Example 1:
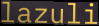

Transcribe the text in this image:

lazuli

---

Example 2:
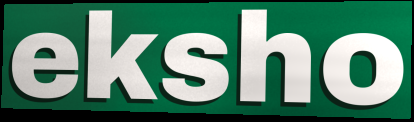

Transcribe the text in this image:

eksho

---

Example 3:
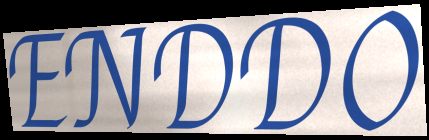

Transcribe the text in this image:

ENDDO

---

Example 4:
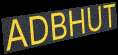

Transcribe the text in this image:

ADBHUT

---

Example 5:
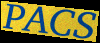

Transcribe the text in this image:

PACS